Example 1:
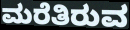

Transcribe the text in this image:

ಮರೆತಿರುವ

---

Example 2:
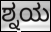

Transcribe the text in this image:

ಶ್ನಯ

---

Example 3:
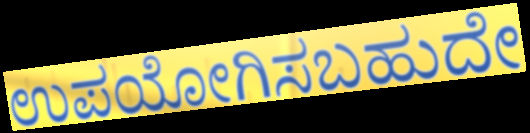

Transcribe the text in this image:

ಉಪಯೋಗಿಸಬಹುದೇ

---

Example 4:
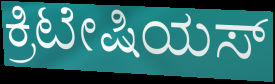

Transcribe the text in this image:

ಕ್ರಿಟೇಷಿಯಸ್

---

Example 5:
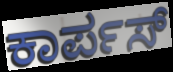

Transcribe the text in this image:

ಕಾರ್ಪಸ್